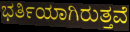
ಭರ್ತಿಯಾಗಿರುತ್ತವೆ